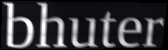
bhuter